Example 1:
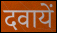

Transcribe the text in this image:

दवायें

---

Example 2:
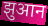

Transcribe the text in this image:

झुआन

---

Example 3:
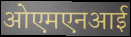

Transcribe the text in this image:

ओएमएनआई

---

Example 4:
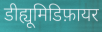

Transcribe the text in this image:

डीह्यूमिडिफ़ायर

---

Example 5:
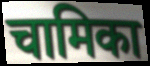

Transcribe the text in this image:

चामिका